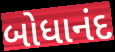
બોધાનંદ